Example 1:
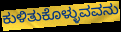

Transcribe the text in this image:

ಕುಳಿತುಕೊಳ್ಳುವವನು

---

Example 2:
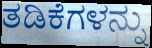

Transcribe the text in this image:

ತಡಿಕೆಗಳನ್ನು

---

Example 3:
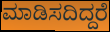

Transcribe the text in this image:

ಮಾಡಿಸದಿದ್ದರೆ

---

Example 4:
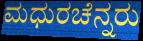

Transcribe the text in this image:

ಮಧುರಚೆನ್ನರು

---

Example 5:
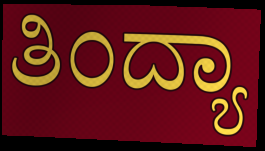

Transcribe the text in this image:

ತಿಂದ್ಯಾ